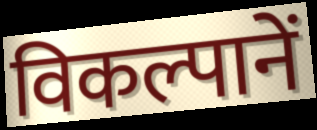
विकल्पानें